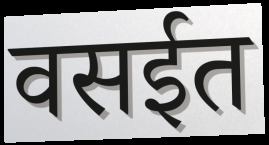
वसईत